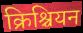
क्रिश्चियन